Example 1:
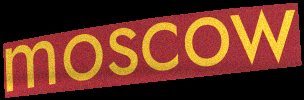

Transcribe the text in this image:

moscow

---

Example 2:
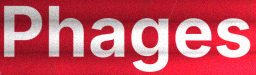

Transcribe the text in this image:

Phages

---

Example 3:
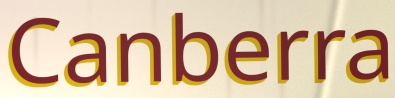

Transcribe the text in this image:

Canberra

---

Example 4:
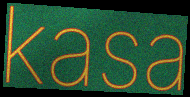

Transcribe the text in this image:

kasa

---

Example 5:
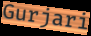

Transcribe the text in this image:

Gurjari